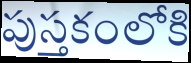
పుస్తకంలోకి